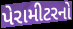
પેરામીટરનો